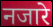
नजारे